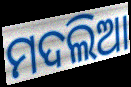
ମଦଲିଆ